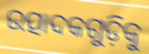
ଉତ୍ପାଦକଗୁଡ଼ିକୁ